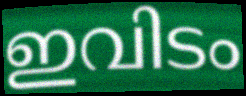
ഇവിടം